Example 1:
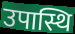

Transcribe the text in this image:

उपास्थि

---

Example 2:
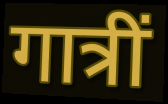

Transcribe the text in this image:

गात्रीं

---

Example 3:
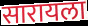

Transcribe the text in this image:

सारायला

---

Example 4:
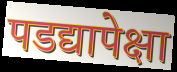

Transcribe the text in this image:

पडद्यापेक्षा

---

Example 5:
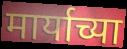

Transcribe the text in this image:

मार्याच्या